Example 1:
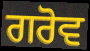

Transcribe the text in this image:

ਗਰੋਵ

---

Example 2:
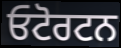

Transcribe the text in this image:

ਓਟੋਰਟਨ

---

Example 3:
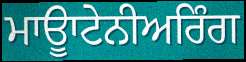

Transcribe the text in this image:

ਮਾਊਾਟੇਨੀਅਰਿੰਗ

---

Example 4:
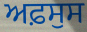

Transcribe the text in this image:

ਅਫ਼ਸੁਸ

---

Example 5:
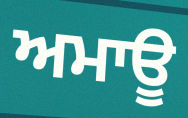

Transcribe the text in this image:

ਅਮਾਊ